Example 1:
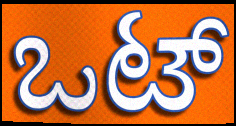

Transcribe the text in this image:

ಒಟ್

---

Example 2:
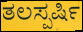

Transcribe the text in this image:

ತಲಸ್ಪರ್ಷಿ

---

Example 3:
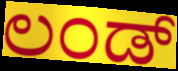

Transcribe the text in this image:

ಲಂಡ್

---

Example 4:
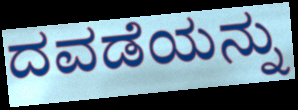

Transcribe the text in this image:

ದವಡೆಯನ್ನು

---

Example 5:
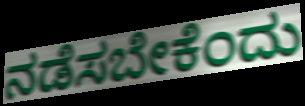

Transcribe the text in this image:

ನಡೆಸಬೇಕೆಂದು